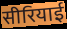
सीरियाई